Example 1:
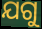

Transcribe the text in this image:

ଯଗୁ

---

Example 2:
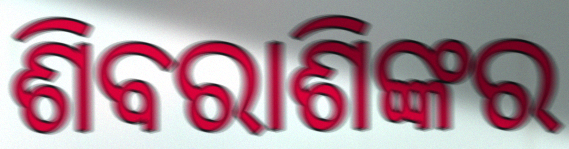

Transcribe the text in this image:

ଶିବରାଶିଙ୍କର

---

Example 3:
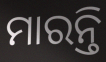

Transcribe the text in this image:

ମାରନ୍ତି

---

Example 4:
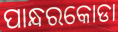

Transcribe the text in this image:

ପାନ୍ଧରକୋଡା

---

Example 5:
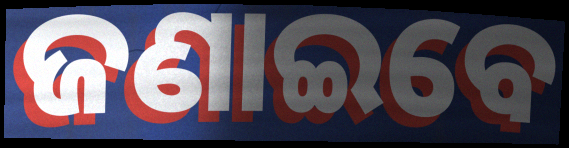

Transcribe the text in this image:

ଜଣାଇବେ